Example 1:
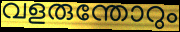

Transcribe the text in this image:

വളരുന്തോറും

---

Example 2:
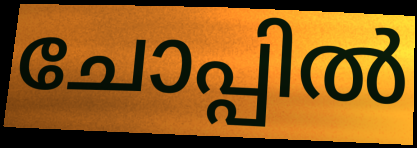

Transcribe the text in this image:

ചോപ്പിൽ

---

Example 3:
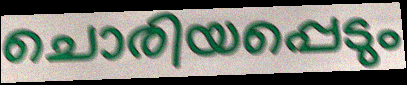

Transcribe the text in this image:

ചൊരിയപ്പെടും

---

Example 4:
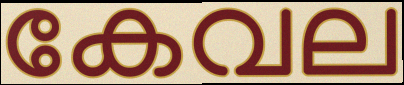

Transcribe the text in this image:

കേവല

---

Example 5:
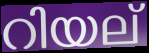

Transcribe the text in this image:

റിയല്